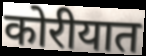
कोरीयात